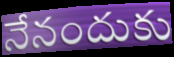
నేనందుకు